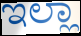
ಇಲ್ಲಾ